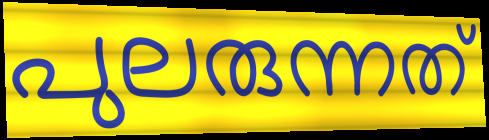
പുലരുന്നത്